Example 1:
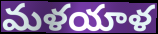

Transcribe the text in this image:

మళయాళ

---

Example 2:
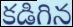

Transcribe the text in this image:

కడిగిన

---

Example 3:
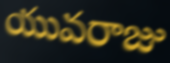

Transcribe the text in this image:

యువరాజు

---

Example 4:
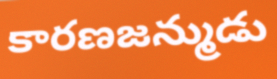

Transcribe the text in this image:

కారణజన్ముడు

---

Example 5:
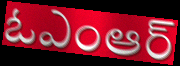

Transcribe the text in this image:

ఓఎంఆర్